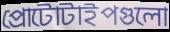
প্রোটোটাইপগুলো